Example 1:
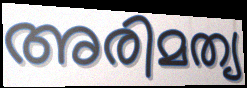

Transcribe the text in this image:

അരിമത്യ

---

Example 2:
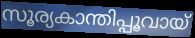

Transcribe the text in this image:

സൂര്യകാന്തിപ്പൂവായ്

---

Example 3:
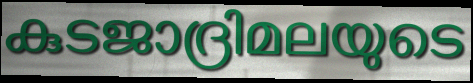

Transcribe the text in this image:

കുടജാദ്രിമലയുടെ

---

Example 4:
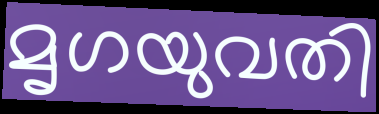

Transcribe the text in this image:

മൃഗയുവതി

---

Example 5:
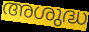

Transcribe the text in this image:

അശുദ്ധ